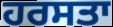
ਹਰਸਤਾ